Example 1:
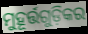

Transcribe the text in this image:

ମୁହୂର୍ତ୍ତଗୁଡ଼ିକର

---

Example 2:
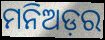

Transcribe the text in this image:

ମନିଅଡ଼ର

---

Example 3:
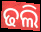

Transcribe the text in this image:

ଢଲି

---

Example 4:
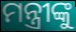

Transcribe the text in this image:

ମନ୍ତ୍ରୀଙ୍କୁ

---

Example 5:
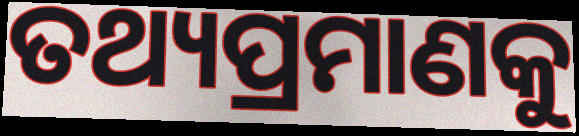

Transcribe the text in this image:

ତଥ୍ୟପ୍ରମାଣକୁ